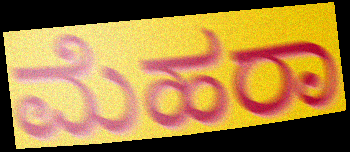
ಮೆಹರಾ